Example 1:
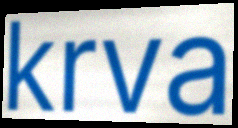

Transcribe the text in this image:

krva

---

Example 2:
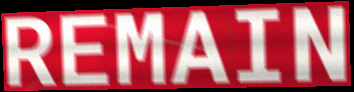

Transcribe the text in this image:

REMAIN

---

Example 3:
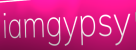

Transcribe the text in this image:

iamgypsy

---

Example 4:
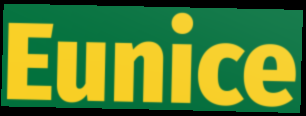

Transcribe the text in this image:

Eunice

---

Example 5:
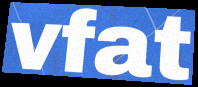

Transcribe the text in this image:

vfat